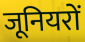
जूनियरों